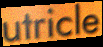
utricle